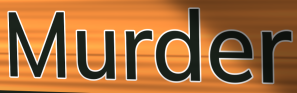
Murder